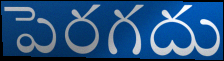
పెరగదు